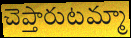
చెప్తారుటమ్మా